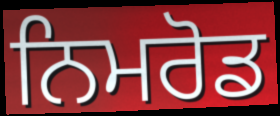
ਨਿਮਰੋਡ